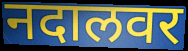
नदालवर